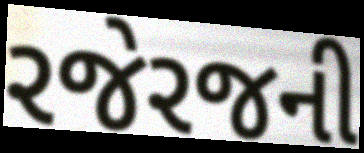
રજેરજની